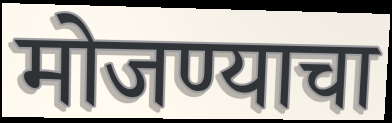
मोजण्याचा